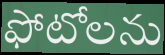
ఫోటోలను